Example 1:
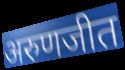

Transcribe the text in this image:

अरुणजीत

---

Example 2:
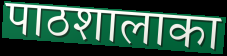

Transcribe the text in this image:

पाठशालाका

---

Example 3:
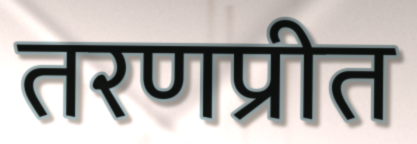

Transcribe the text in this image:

तरणप्रीत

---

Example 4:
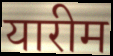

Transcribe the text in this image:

यारीम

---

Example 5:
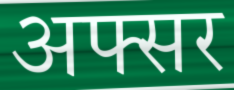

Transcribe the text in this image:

अफ्सर